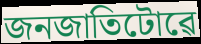
জনজাতিটোৱে